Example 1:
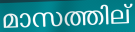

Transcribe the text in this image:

മാസത്തില്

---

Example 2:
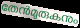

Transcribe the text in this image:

തേൻമുരുകനും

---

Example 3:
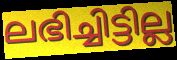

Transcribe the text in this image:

ലഭിച്ചിട്ടില്ല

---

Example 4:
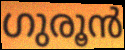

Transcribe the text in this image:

ഗുരൂൻ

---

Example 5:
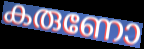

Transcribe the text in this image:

കരുണോ